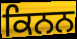
ਕਿਨਨ